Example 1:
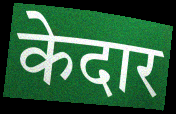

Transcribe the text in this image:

केदार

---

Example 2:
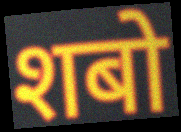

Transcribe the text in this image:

शबो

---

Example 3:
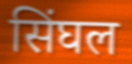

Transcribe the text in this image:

सिंघल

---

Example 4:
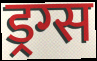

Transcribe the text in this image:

ड्रग्‍स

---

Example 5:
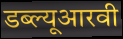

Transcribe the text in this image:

डब्ल्यूआरवी